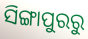
ସିଙ୍ଗାପୁରରୁ